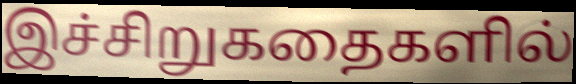
இச்சிறுகதைகளில்